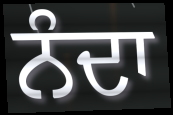
ਨੰਦਾ